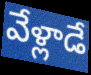
వేళ్లాడే